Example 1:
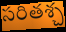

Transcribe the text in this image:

సరితశ్చ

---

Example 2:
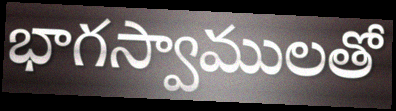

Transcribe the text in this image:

భాగస్వాములతో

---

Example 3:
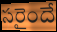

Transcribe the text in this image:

సరైందే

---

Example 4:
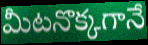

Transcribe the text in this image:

మీటనొక్కగానే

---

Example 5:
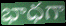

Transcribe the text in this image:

భాధగా